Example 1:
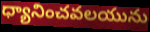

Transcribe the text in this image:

ధ్యానించవలయును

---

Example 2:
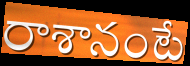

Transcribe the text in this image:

రాశానంటే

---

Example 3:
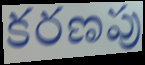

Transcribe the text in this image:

కరణపు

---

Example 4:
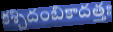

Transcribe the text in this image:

కశ్చిదంబికాదత్తః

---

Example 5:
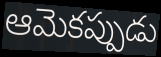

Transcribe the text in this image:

ఆమెకప్పుడు